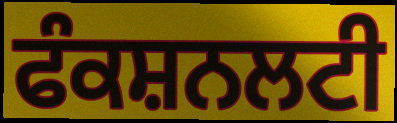
ਫੰਕਸ਼ਨਲਟੀ